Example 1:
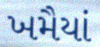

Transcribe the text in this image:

ખમૈયાં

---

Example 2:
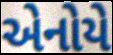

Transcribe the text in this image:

એનોયે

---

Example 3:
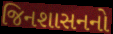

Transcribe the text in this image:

જિનશાસનનો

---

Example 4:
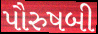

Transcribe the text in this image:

પૌરુષબી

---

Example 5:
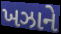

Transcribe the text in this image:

ખઝાને